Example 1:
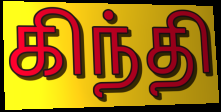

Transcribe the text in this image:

கிந்தி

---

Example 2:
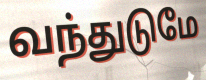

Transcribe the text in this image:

வந்துடுமே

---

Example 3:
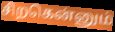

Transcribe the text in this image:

சிறகென்னும்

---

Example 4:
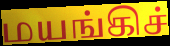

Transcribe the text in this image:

மயங்கிச்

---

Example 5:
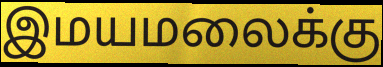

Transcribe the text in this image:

இமயமலைக்கு